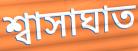
শ্বাসাঘাত